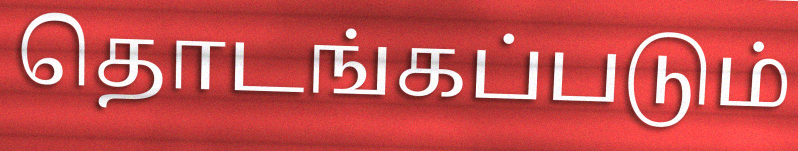
தொடங்கப்படும்